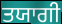
ਤਯਾਗੀ